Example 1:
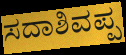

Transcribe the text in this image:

ಸದಾಶಿವಪ್ಪ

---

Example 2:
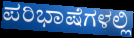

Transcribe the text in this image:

ಪರಿಭಾಷೆಗಳಲ್ಲಿ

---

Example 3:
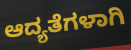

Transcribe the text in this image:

ಆದ್ಯತೆಗಳಾಗಿ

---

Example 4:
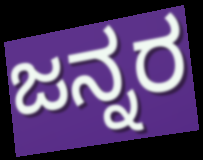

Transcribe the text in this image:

ಜನ್ನರ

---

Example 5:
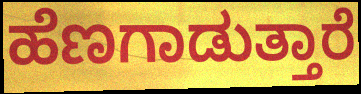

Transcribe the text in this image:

ಹೆಣಗಾಡುತ್ತಾರೆ